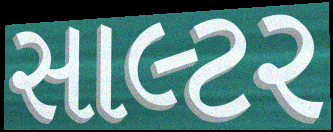
સાલ્ટર